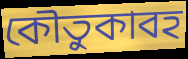
কৌতুকাবহ